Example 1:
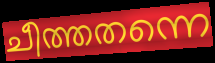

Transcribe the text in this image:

ചീത്തതന്നെ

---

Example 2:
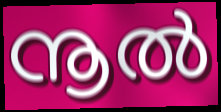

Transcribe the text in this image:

നൂൽ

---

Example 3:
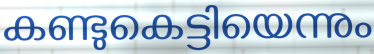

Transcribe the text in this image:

കണ്ടുകെട്ടിയെന്നും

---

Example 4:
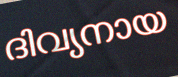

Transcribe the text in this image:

ദിവ്യനായ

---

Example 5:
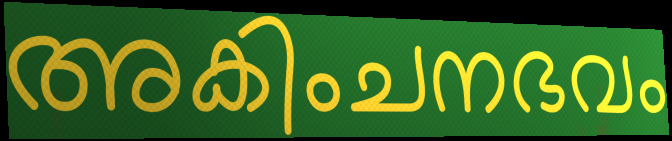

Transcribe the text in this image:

അകിംചനഭവം